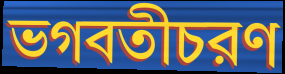
ভগবতীচরণ